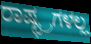
ರಾಷ್ಟ್ರಗಳಲ್ಲ